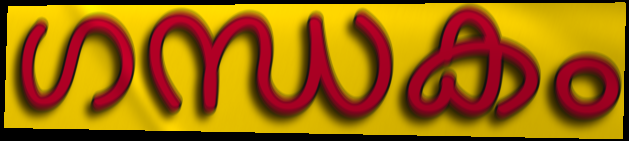
ഗന്ധകം